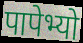
पापेभ्यो